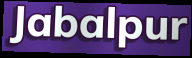
Jabalpur